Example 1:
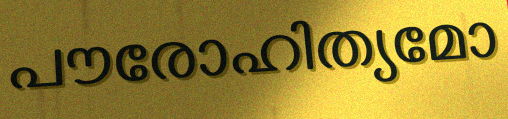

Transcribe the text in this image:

പൗരോഹിത്യമോ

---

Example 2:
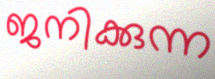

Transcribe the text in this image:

ജനിക്കുന്ന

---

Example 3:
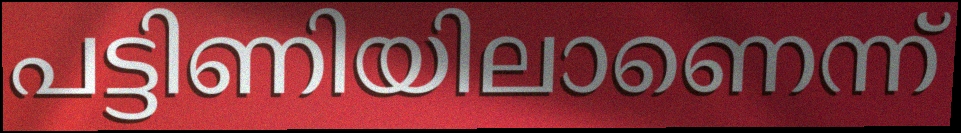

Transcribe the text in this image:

പട്ടിണിയിലാണെന്ന്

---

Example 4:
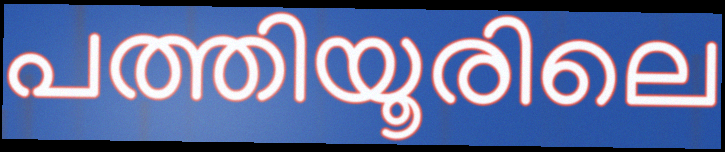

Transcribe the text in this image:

പത്തിയൂരിലെ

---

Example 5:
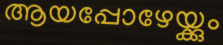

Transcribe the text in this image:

ആയപ്പോഴേയ്ക്കും